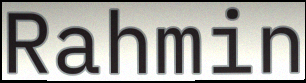
Rahmin